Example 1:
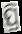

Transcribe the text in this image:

ପ୍ରି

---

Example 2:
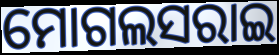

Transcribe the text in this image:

ମୋଗଲସରାଇ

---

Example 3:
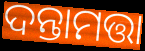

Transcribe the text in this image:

ଦନ୍ତାମତ୍ତା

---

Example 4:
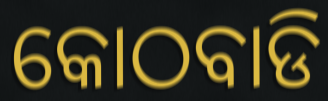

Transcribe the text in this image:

କୋଠବାଡି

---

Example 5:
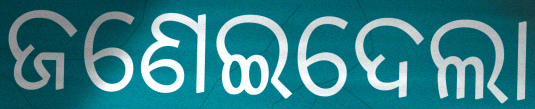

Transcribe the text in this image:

ଜଣେଇଦେଲା